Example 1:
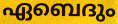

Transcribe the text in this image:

ഏബെദും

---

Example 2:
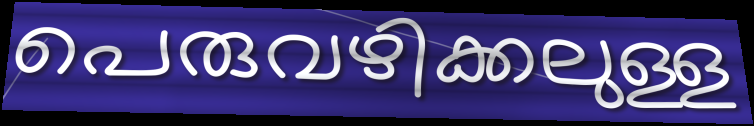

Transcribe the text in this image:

പെരുവഴിക്കലുള്ള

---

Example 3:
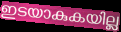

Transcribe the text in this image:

ഇടയാകുകയില്ല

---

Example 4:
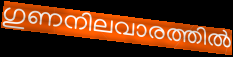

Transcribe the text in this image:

ഗുണനിലവാരത്തിൽ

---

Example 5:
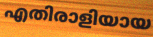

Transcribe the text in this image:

എതിരാളിയായ